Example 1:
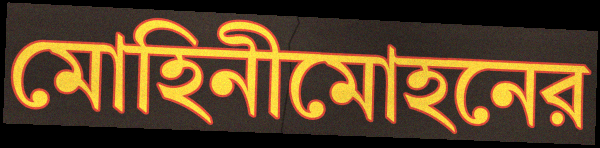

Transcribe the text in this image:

মোহিনীমোহনের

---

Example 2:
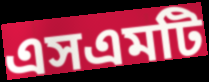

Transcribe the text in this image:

এসএমটি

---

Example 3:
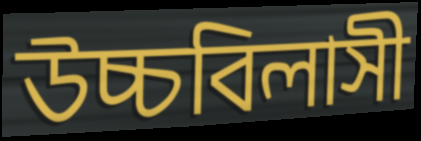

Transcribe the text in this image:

উচ্চবিলাসী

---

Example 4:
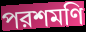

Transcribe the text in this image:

পরশমণি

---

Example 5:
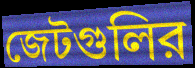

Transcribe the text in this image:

জেটগুলির